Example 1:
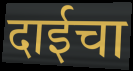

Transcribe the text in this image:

दाईचा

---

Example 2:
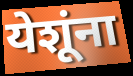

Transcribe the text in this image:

येशूंना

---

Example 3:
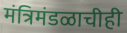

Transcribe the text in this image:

मंत्रिमंडळाचीही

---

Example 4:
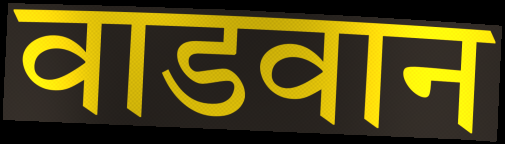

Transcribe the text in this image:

वाडवान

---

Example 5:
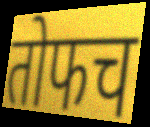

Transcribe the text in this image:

तोफच